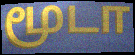
மூடா